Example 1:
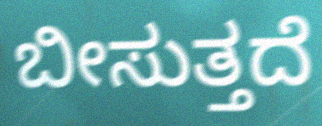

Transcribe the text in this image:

ಬೀಸುತ್ತದೆ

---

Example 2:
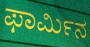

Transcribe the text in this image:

ಫಾರ್ಮಿನ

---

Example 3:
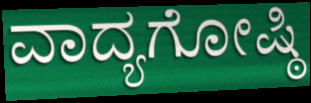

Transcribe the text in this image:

ವಾದ್ಯಗೋಷ್ಠಿ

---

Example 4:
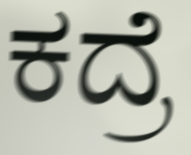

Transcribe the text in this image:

ಕದ್ರೆ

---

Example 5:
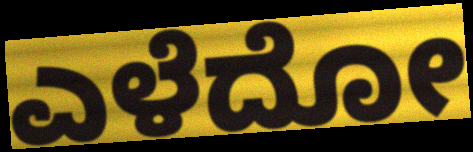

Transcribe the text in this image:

ಎಳೆದೋ